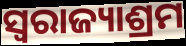
ସ୍ୱରାଜ୍ୟାଶ୍ରମ